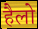
हैलो